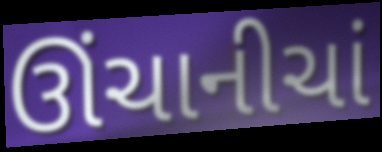
ઊંચાનીચાં